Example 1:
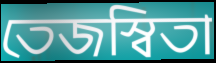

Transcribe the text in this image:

তেজস্বিতা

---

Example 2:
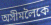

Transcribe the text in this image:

অসীমলৈকে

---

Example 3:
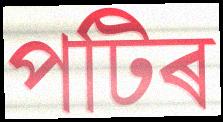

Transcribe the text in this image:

পটিৰ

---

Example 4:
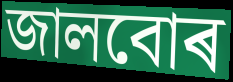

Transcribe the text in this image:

জালবোৰ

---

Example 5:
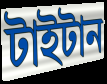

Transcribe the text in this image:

টাইটান